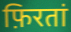
फ़िरतां